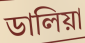
ডালিয়া